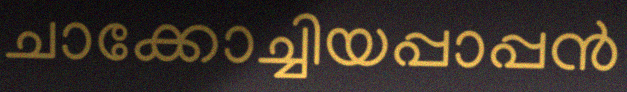
ചാക്കോച്ചിയപ്പാപ്പൻ